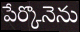
పేర్కొనెను